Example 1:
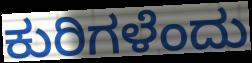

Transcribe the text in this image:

ಕುರಿಗಳೆಂದು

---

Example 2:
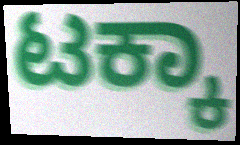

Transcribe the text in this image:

ಟಕ್ಕಾ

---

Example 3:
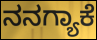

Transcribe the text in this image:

ನನಗ್ಯಾಕೆ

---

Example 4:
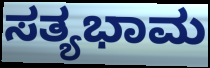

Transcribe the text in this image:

ಸತ್ಯಭಾಮ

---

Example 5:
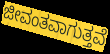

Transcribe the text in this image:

ಜೀವಂತವಾಗುತ್ತವೆ